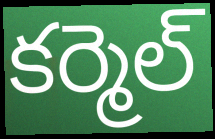
కర్మెల్